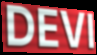
DEVI